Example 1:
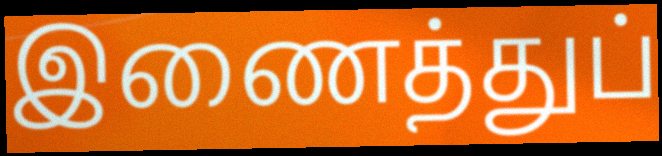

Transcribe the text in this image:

இணைத்துப்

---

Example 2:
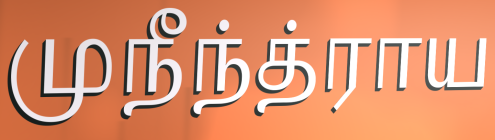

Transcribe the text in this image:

முநீந்த்ராய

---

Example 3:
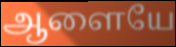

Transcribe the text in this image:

ஆளையே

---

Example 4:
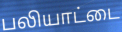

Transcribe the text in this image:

பலியாட்டை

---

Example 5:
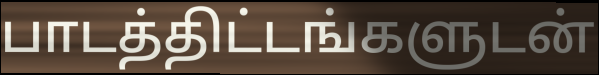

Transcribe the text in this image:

பாடத்திட்டங்களுடன்